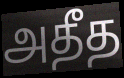
அதீத